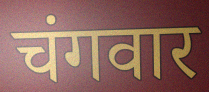
चंगवार